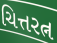
ચિત્તરત્ન